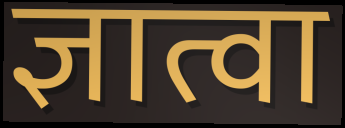
ज्ञात्वा